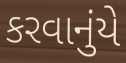
કરવાનુંયે